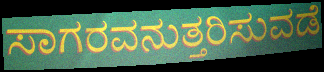
ಸಾಗರವನುತ್ತರಿಸುವಡೆ